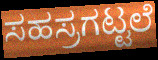
ಸಹಸ್ರಗಟ್ಟಲೆ